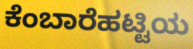
ಕೆಂಬಾರೆಹಟ್ಟಿಯ